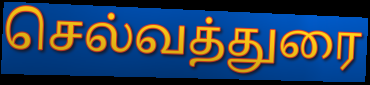
செல்வத்துரை